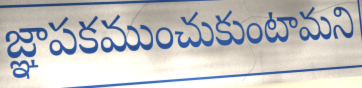
జ్ఞాపకముంచుకుంటామని